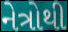
નેત્રોથી